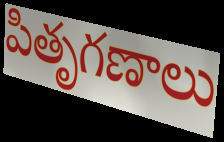
పితృగణాలు